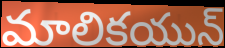
మాలికయున్